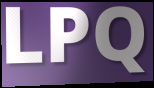
LPQ